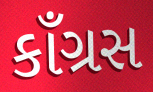
કાઁગ્રસ